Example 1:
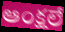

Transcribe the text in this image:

ఆంక్షలే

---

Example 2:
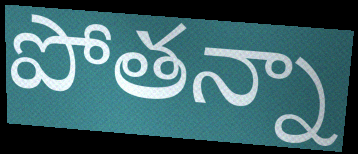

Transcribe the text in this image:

పోతన్నా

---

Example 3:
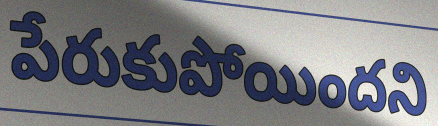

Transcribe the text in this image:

పేరుకుపోయిందని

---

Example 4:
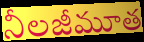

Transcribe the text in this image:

నీలజీమూత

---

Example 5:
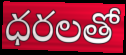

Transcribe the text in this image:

ధరలతో